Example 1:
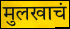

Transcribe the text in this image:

मुलखाचं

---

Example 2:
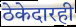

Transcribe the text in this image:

ठेकेदारही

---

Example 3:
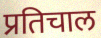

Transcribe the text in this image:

प्रतिचाल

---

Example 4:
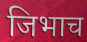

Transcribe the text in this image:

जिभाच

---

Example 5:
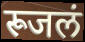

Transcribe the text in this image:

रूजलं